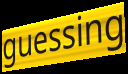
guessing